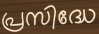
പ്രസിദ്ധേ